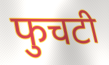
फुचटी